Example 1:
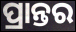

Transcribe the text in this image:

ପ୍ରାନ୍ତର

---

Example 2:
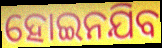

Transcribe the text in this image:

ହୋଇନଯିବ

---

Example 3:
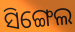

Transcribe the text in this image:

ସିଙ୍ଗେଲ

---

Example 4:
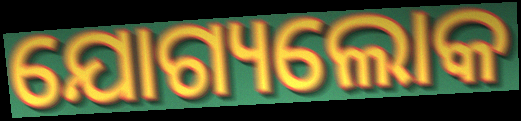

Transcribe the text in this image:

ଯୋଗ୍ୟଲୋକ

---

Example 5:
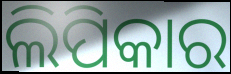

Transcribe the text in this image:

ଲିପିକାର